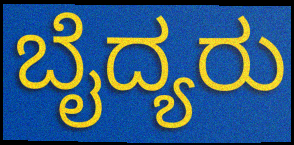
ಬೈದ್ಯರು